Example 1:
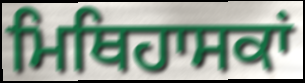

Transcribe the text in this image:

ਮਿਥਿਹਾਸਕਾਂ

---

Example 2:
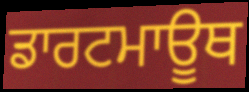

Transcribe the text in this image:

ਡਾਰਟਮਾਊਥ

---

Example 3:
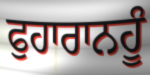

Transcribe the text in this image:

ਫੁਹਾਰਾਨਹੂੰ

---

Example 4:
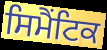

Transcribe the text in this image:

ਸਿਮੈਂਟਿਕ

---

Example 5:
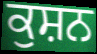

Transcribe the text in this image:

ਕੁਸ਼ਨ